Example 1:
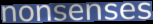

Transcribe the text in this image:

nonsenses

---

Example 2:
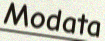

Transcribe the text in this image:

Modata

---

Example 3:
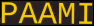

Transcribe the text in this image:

PAAMI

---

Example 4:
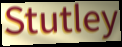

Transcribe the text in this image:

Stutley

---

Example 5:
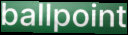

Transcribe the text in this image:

ballpoint